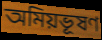
অমিয়ভূষণ